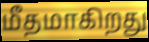
மீதமாகிறது